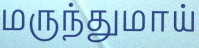
மருந்துமாய்